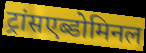
ट्रांसएब्डोमिनल